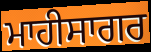
ਮਾਹੀਸਾਗਰ